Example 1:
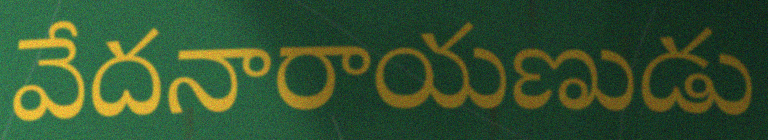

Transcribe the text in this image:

వేదనారాయణుడు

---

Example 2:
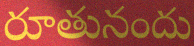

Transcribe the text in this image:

రూతునందు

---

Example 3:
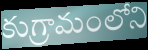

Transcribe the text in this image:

కుగ్రామంలోని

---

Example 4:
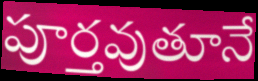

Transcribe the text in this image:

పూర్తవుతూనే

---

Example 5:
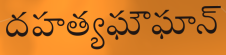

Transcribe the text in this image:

దహత్యఘౌఘాన్